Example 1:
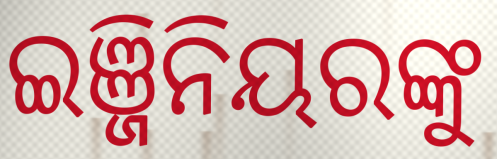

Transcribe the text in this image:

ଇଞ୍ଜିନିୟରଙ୍କୁ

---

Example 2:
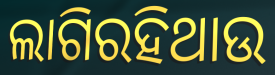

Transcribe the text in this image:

ଲାଗିରହିଥାଉ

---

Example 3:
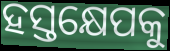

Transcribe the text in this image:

ହସ୍ତକ୍ଷେପକୁ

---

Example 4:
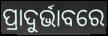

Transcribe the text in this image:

ପ୍ରାଦୁର୍ଭାବରେ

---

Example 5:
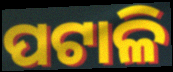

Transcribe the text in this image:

ପଟାଳି